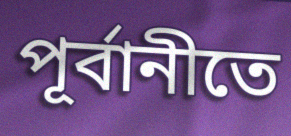
পূর্বানীতে